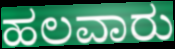
ಹಲವಾರು